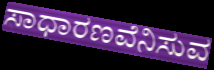
ಸಾಧಾರಣವೆನಿಸುವ